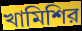
খামিশির